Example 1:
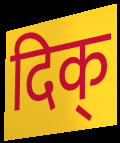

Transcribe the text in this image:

दिक्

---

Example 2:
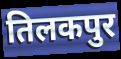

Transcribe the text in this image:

तिलकपुर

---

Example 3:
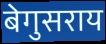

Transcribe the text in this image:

बेगुसराय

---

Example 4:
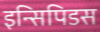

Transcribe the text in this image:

इन्सिपिडस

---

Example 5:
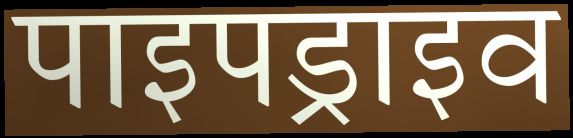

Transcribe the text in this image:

पाइपड्राइव